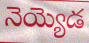
నెయ్యెడ